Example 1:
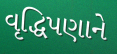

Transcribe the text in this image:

વૃદ્ધિપણાને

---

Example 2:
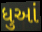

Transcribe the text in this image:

ધુઆં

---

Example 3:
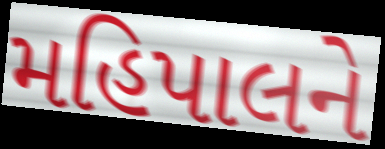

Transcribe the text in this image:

મહિપાલને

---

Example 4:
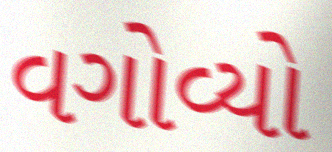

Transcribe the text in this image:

વગોવ્યો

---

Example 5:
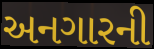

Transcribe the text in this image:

અનગારની